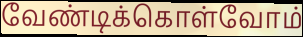
வேண்டிக்கொள்வோம்